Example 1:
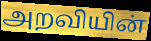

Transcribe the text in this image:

அறவியின்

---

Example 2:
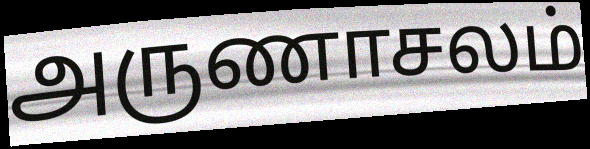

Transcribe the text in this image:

அருணாசலம்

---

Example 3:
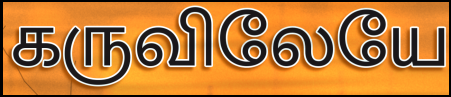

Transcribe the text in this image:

கருவிலேயே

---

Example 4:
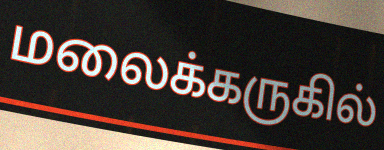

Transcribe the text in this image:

மலைக்கருகில்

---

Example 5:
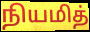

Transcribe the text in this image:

நியமித்